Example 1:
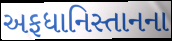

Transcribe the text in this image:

અફધાનિસ્તાનના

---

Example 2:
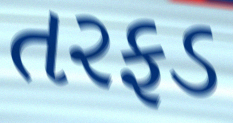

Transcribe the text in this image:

તરફડ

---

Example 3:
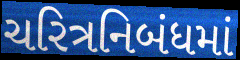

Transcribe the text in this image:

ચરિત્રનિબંધમાં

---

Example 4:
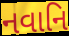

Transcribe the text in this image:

નવાનિ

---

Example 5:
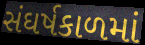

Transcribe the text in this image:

સંઘર્ષકાળમાં